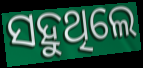
ସହୁଥିଲେ